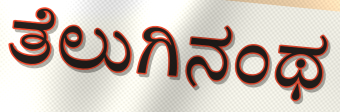
ತೆಲುಗಿನಂಥ